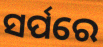
ସର୍ପରେ